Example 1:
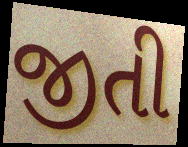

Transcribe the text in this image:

જીતી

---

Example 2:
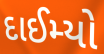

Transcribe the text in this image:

દાઈમ્યો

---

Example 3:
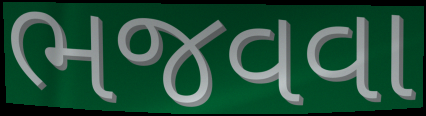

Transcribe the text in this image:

ભજવવા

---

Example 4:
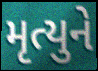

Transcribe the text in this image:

મૃત્યુને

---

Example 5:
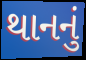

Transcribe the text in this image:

થાનનું